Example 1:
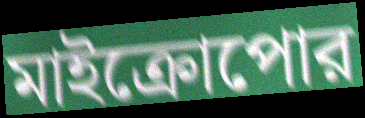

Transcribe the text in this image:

মাইক্রোপোর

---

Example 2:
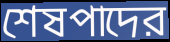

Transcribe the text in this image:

শেষপাদের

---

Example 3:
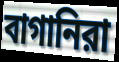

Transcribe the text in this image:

বাগানিরা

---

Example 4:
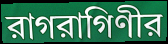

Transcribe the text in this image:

রাগরাগিণীর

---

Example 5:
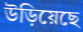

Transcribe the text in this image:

উড়িয়েছে